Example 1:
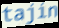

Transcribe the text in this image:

tajin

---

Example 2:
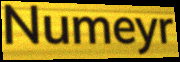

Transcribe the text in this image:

Numeyr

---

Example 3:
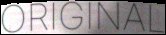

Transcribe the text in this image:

ORIGINAL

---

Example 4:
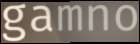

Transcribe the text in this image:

gamno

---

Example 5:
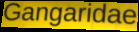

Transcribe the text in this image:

Gangaridae